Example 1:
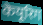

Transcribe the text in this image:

केयूरिग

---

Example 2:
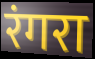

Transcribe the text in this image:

रंगरा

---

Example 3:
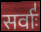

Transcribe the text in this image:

सर्वाः॑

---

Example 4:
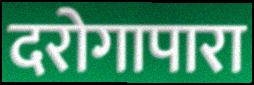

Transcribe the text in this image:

दरोगापारा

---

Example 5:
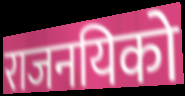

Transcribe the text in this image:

राजनयिको